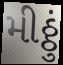
મીઠ્ઠું